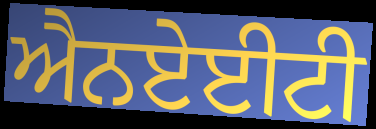
ਐਨਏਈਟੀ